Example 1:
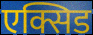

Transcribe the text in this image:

एक्सिड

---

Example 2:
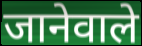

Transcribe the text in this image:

जानेवाले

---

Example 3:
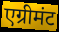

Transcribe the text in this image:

एग्रीमंट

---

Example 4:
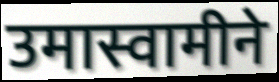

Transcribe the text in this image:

उमास्वामीने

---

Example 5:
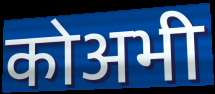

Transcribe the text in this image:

कोअभी